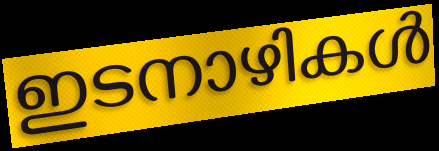
ഇടനാഴികൾ